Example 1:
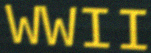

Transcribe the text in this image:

WWII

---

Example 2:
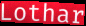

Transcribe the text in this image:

Lothar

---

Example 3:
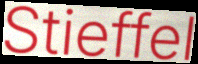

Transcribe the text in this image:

Stieffel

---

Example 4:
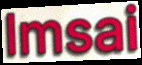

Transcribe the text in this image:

Imsai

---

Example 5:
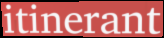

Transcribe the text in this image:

itinerant